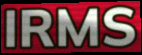
IRMS